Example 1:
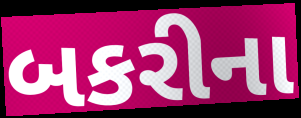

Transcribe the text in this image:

બકરીના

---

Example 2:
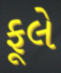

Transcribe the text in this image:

ફૂલે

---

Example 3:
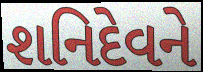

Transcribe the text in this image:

શનિદેવને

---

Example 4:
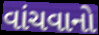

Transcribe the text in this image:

વાંચવાનો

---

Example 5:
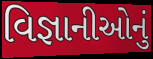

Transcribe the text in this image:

વિજ્ઞાનીઓનું